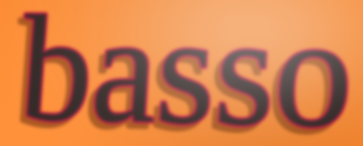
basso